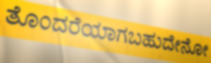
ತೊಂದರೆಯಾಗಬಹುದೇನೋ